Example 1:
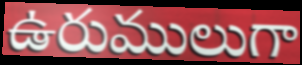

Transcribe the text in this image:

ఉరుములుగా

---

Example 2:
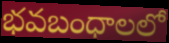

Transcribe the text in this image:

భవబంధాలలో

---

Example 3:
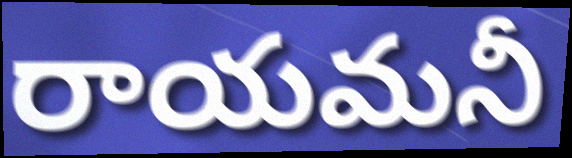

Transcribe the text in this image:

రాయమనీ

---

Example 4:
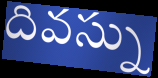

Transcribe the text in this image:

దివస్ను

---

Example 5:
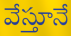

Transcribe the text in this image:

వేస్తూనే